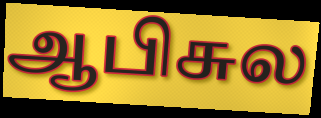
ஆபிசுல